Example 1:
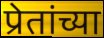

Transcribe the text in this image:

प्रेतांच्या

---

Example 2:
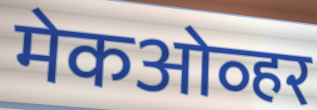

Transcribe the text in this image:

मेकओव्हर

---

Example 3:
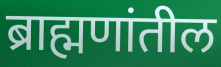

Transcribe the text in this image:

ब्राह्मणांतील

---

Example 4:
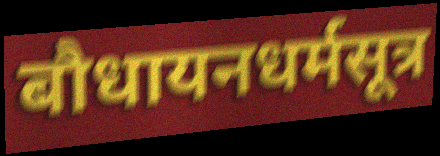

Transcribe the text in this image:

बौधायनधर्मसूत्र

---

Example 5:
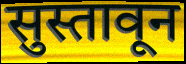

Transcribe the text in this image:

सुस्तावून